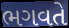
ભગવતે